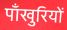
पाँखुरियों